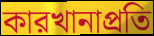
কারখানাপ্রতি